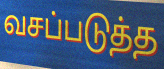
வசப்படுத்த